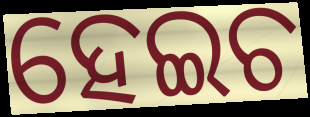
ହେଇଚ